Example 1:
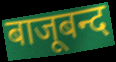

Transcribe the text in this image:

बाजूबन्द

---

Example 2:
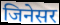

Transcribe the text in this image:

जिनेसर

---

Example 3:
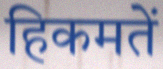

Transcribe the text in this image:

हिकमतें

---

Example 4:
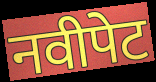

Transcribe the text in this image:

नवीपेट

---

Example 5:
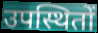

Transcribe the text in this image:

उपस्थितों